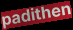
padithen